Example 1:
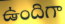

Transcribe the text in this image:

ఉందిగా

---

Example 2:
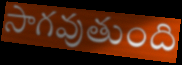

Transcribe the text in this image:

సాగవుతుంది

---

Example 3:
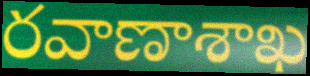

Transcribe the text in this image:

రవాణాశాఖ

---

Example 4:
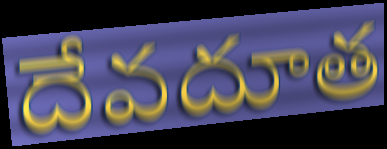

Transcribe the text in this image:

దేవదూత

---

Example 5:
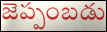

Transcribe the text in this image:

జెప్పంబడు